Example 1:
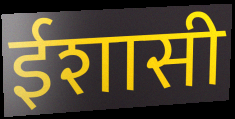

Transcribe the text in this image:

ईशासी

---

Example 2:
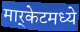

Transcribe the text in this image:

मार्केटमध्ये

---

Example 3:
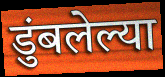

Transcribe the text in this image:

डुंबलेल्या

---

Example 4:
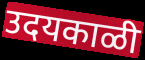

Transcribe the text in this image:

उदयकाळी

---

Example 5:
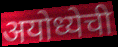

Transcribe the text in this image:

अयोध्येची